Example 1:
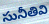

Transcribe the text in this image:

సునీతివి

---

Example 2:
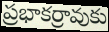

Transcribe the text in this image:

ప్రభాకర్రావుకు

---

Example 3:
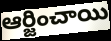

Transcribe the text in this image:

ఆర్జించాయి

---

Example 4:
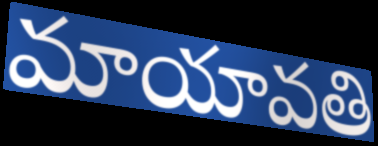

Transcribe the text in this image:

మాయావతి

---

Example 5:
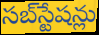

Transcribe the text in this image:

సబ్‌స్టేషన్లు